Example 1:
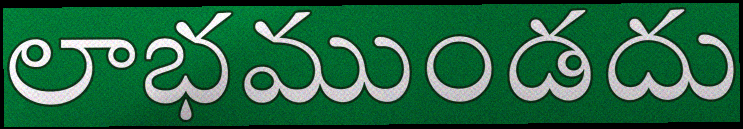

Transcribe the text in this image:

లాభముండదు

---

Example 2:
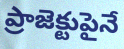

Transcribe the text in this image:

ప్రాజెక్టుపైనే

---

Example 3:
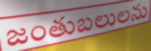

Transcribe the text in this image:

జంతుబలులను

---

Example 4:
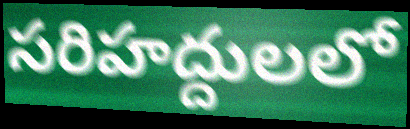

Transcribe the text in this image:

సరిహద్దులలో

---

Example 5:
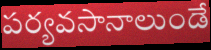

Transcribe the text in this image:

పర్యవసానాలుండే